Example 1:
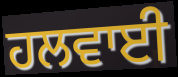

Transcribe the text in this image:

ਹਲਵਾਈ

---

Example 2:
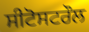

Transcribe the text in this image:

ਸੀਟੋਸਟਰੌਲ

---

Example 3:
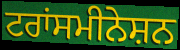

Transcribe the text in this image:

ਟਰਾਂਸਮੀਨੇਸ਼ਨ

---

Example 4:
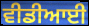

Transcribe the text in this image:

ਵੀਡੀਆਈ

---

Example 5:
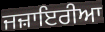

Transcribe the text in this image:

ਜਜ਼ਾਇਰੀਆ